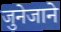
जुनेजाने